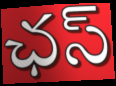
ఛస్